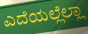
ಎದೆಯಲ್ಲೆಲ್ಲಾ